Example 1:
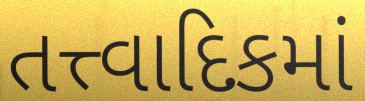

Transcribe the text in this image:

તત્ત્વાદિકમાં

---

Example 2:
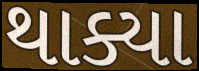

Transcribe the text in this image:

થાક્યા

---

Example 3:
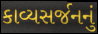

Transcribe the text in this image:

કાવ્યસર્જનનું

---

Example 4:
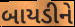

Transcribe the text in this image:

બાયડીને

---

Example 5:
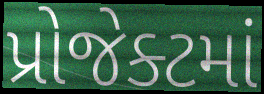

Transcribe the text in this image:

પ્રોજેક્ટમાં